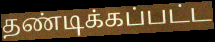
தண்டிக்கப்பட்ட